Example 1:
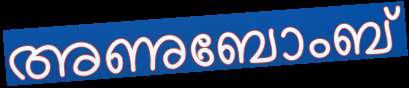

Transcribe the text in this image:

അണുബോംബ്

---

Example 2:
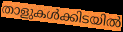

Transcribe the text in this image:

താളുകൾക്കിടയിൽ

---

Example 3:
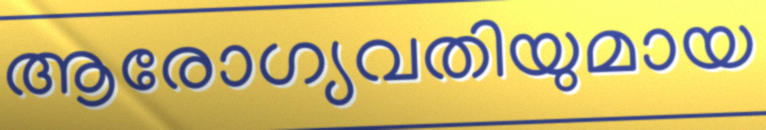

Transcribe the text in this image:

ആരോഗ്യവതിയുമായ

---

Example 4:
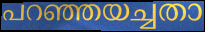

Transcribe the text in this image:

പറഞ്ഞയച്ചതാ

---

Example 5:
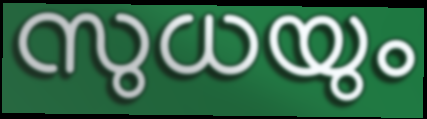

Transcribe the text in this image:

സുധയും